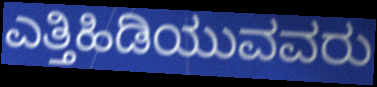
ಎತ್ತಿಹಿಡಿಯುವವರು